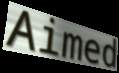
Aimed